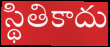
స్థితికాదు